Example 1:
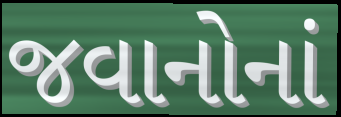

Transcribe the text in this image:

જવાનોનાં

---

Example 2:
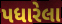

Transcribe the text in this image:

પધારેલા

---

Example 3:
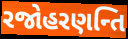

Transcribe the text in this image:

રજોહરણન્તિ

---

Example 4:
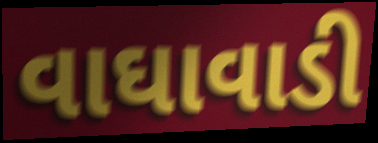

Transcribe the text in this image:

વાઘાવાડી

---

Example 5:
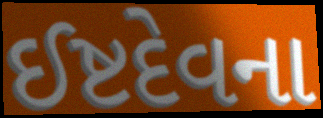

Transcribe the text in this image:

ઈષ્ટદેવના